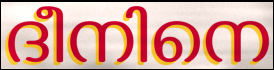
ദീനിനെ